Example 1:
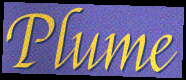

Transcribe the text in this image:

Plume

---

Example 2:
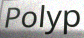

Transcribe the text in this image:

Polyp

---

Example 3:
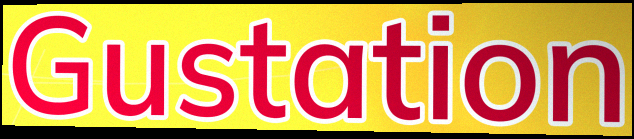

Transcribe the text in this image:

Gustation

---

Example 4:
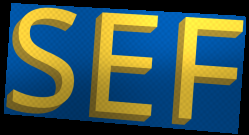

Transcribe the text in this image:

SEF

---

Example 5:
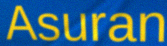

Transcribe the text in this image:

Asuran